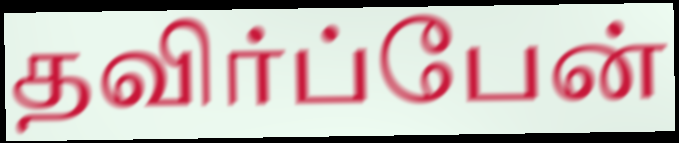
தவிர்ப்பேன்